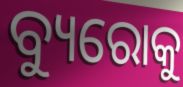
ବ୍ୟୁରୋକୁ